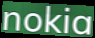
nokia